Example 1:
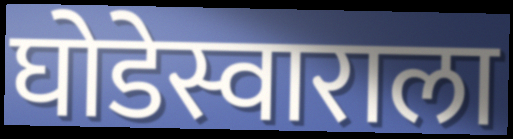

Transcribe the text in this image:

घोडेस्वाराला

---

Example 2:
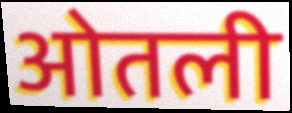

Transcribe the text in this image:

ओतली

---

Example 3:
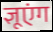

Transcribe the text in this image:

ज्ञूएंग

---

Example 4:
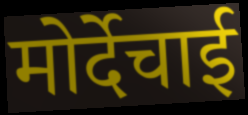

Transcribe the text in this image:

मोर्देचाई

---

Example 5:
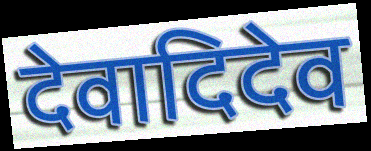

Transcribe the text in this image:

देवादिदेव